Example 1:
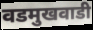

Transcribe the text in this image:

वडमुखवाडी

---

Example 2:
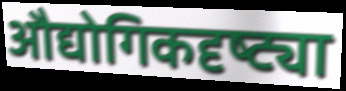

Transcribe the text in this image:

औद्योगिकदृष्ट्या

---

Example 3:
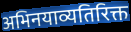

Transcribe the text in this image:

अभिनयाव्यतिरिक्त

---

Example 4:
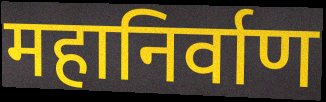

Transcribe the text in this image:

महानिर्वाण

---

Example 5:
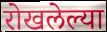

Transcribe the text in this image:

रोखलेल्या